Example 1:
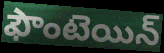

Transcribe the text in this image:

ఫౌంటెయిన్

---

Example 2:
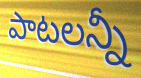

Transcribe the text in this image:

పాటలన్నీ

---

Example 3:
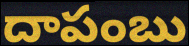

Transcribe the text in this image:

దాపంబు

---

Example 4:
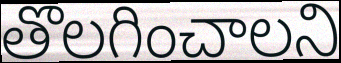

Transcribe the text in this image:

తొలగించాలని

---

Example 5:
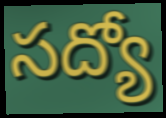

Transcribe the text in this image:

సద్యో